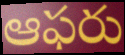
ఆఫరు